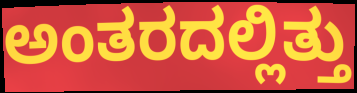
ಅಂತರದಲ್ಲಿತ್ತು